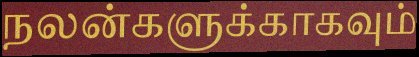
நலன்களுக்காகவும்